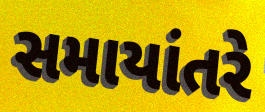
સમાયાંતરે